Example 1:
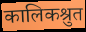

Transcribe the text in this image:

कालिकश्रुत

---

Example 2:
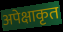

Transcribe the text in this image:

अपेक्षाकृत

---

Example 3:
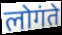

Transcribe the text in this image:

लोगंते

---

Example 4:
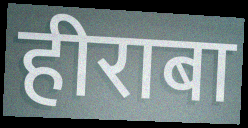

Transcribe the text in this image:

हीराबा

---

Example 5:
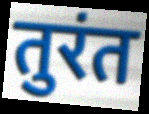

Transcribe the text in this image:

तुरंत